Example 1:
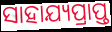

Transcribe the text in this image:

ସାହାଯ୍ୟପ୍ରାପ୍ତ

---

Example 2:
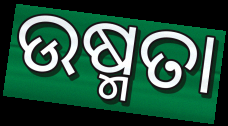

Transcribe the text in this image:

ଉଷ୍ମତା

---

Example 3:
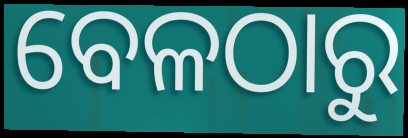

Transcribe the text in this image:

ବେଳଠାରୁ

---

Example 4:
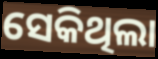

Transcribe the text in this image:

ସେକିଥିଲା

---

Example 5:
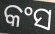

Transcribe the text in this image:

କଂସ